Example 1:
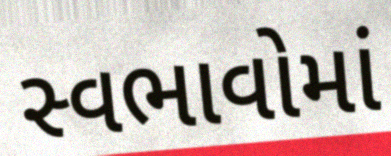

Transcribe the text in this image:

સ્વભાવોમાં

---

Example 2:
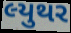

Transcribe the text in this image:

લ્યુથર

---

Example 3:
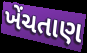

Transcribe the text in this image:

ખેંચતાણ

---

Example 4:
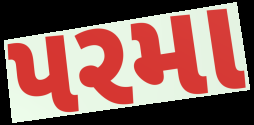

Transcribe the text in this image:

પરમા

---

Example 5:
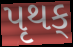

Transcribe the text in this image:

પૃથક્